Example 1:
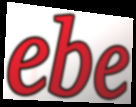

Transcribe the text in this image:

ebe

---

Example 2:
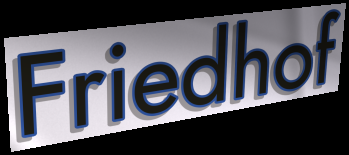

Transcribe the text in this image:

Friedhof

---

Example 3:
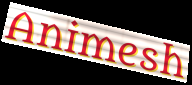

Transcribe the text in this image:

Animesh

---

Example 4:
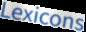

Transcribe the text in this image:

Lexicons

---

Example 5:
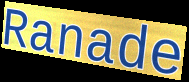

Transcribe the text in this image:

Ranade